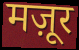
मज़ूर